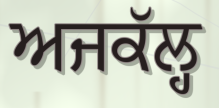
ਅਜਕੱਲ੍ਹ